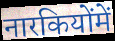
नारकियोंमें